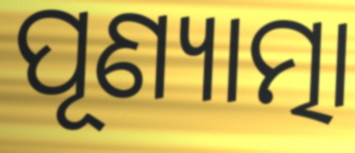
ପୂଣ୍ୟାତ୍ମା